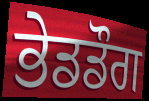
ਭੇਡਡੌਗ